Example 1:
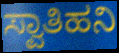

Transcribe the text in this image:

ಸ್ವಾತಿಹನಿ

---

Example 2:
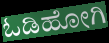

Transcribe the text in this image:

ಓಡಿಹೋಗಿ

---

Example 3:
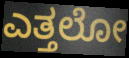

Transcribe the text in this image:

ಎತ್ತಲೋ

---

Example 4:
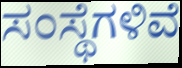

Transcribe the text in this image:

ಸಂಸ್ಥೆಗಳಿವೆ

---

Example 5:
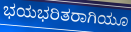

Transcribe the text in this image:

ಭಯಭರಿತರಾಗಿಯೂ